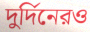
দুর্দিনেরও